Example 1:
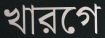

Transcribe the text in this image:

খারগে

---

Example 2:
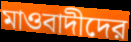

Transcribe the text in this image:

মাওবাদীদের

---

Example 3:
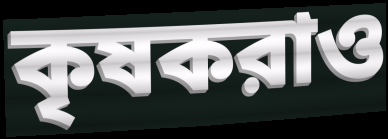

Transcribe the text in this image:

কৃষকরাও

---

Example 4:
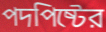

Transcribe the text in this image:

পদপিষ্টের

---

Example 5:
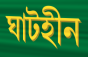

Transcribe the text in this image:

ঘাটহীন